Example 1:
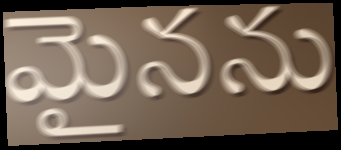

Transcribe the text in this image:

మైనను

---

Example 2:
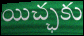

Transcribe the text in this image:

యిచ్ఛకు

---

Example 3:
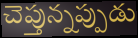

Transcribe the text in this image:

చెప్తున్నప్పుడు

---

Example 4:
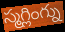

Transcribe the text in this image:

స్మగ్లింగ్ను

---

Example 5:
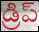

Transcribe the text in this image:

డ్రిప్